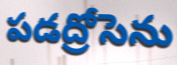
పడద్రోసెను